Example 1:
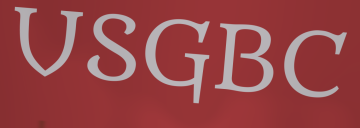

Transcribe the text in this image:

USGBC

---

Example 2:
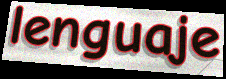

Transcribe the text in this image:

lenguaje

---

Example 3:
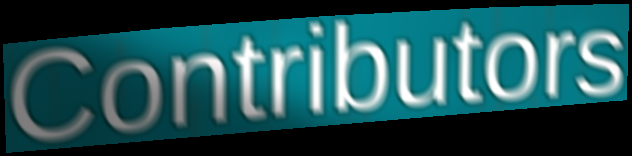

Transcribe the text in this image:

Contributors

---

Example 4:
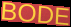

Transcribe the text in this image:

BODE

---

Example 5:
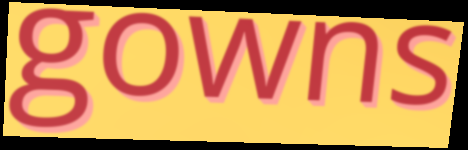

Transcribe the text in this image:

gowns